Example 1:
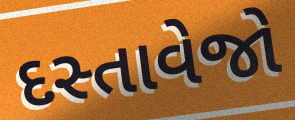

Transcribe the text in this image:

દસ્તાવેજો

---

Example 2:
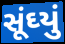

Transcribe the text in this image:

સૂંઘ્યું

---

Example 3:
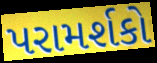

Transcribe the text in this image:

પરામર્શકો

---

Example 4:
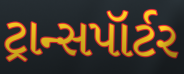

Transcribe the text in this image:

ટ્રાન્સપૉર્ટર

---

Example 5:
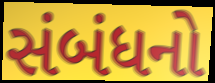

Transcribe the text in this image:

સંબંધનો